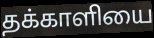
தக்காளியை